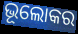
ଭୂଲୋକର